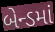
બેન્ડમાં